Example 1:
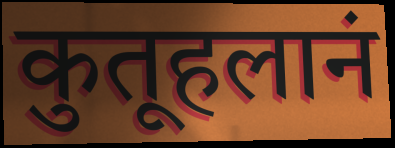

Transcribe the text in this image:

कुतूहलानं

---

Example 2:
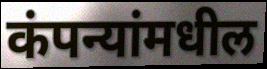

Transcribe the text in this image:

कंपन्यांमधील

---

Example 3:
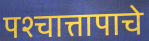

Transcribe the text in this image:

पश्चात्तापाचे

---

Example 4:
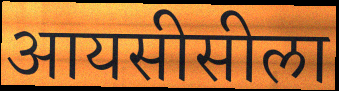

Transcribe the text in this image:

आयसीसीला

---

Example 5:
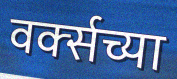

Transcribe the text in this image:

वर्क्‍सच्या